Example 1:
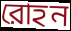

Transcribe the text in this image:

রোহন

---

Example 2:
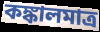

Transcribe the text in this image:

কঙ্কালমাত্র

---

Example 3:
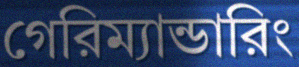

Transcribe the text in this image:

গেরিম্যান্ডারিং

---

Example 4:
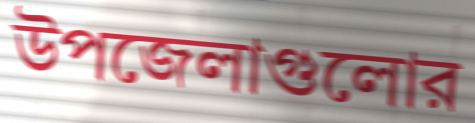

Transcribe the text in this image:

উপজেলাগুলোর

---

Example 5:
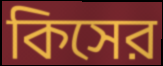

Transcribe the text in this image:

কিসের